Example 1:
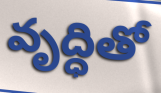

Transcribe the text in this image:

వృద్ధితో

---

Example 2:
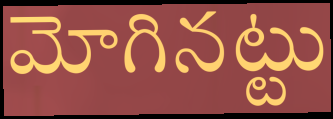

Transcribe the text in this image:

మోగినట్టు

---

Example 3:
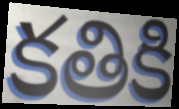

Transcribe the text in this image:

కతికి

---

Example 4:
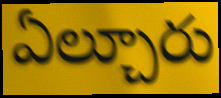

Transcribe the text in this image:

ఏల్చూరు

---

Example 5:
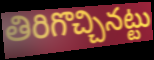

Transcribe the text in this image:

తిరిగొచ్చినట్టు